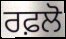
ਰਫ਼ਲੋ